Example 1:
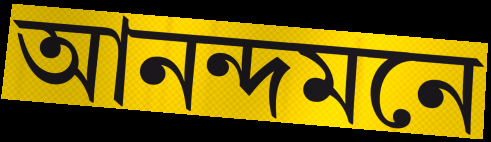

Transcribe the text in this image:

আনন্দমনে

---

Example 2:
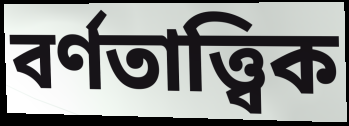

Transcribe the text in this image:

বৰ্ণতাত্ত্বিক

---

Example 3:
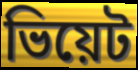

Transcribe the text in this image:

ভিয়েট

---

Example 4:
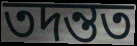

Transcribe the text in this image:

তদন্তত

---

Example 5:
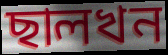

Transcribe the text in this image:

ছালখন